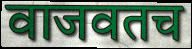
वाजवतच